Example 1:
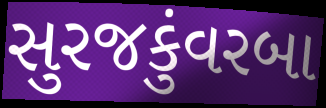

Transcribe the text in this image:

સુરજકુંવરબા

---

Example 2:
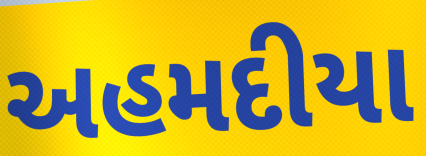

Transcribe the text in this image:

અહમદીયા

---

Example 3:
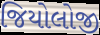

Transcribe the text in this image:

જિયોલોજી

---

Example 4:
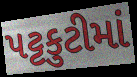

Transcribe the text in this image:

પટ્ટકુટીમાં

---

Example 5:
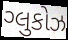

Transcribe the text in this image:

ગ્લુકોઝ